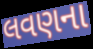
લવણના